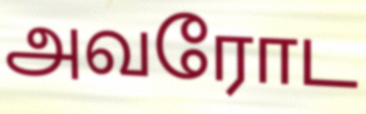
அவரோட